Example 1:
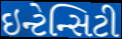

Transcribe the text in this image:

ઇન્ટેન્સિટી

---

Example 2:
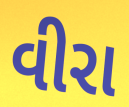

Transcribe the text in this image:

વીરા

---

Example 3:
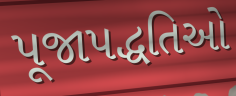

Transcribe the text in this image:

પૂજાપદ્ધતિઓ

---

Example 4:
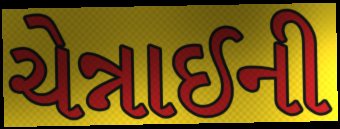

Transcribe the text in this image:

ચેન્નાઈની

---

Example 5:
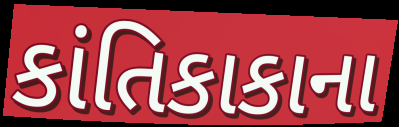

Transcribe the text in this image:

કાંતિકાકાના